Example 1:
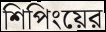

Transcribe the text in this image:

শিপিংয়ের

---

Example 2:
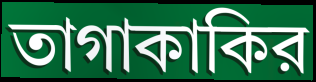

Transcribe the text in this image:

তাগাকাকির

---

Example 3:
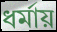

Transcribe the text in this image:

ধর্মায়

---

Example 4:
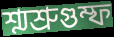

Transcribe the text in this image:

শ্মশ্রুগুম্ফ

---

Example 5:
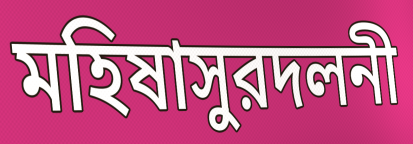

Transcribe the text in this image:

মহিষাসুরদলনী